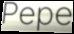
Pepe